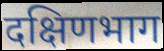
दक्षिणभाग